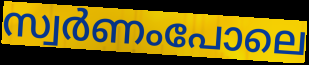
സ്വർണംപോലെ